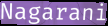
Nagarani